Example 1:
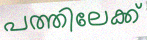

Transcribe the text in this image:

പത്തിലേക്ക്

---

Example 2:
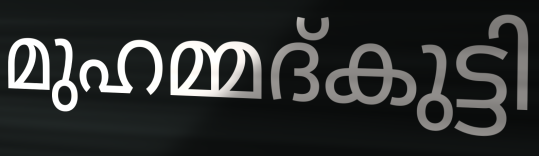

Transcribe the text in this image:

മുഹമ്മദ്കുട്ടി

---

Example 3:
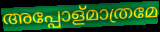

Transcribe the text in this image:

അപ്പോള്മാത്രമേ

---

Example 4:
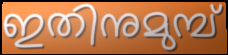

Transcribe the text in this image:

ഇതിനുമുമ്പ്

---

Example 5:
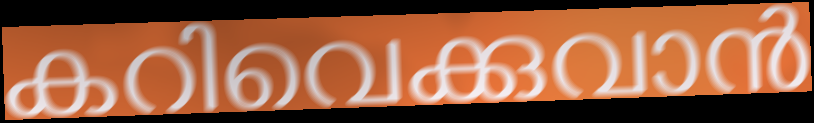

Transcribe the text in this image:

കറിവെക്കുവാൻ